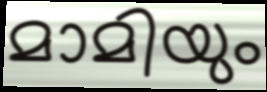
മാമിയും